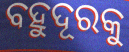
ବହୁଦୂରକୁ